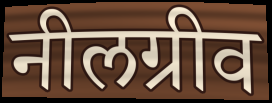
नीलग्रीव